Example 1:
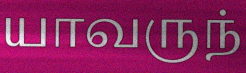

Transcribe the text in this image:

யாவருந்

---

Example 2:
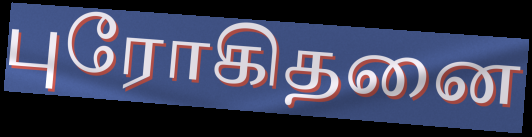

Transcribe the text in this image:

புரோகிதனை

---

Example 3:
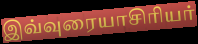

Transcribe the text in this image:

இவ்வுரையாசிரியர்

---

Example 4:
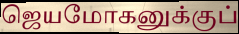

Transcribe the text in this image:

ஜெயமோகனுக்குப்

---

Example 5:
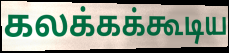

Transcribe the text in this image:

கலக்கக்கூடிய